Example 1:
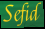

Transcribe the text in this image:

Sefid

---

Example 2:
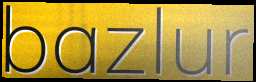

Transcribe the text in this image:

bazlur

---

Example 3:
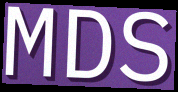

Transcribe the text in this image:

MDS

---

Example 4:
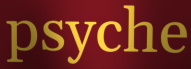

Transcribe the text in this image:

psyche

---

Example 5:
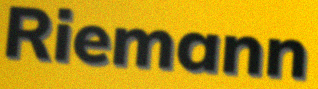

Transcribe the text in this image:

Riemann